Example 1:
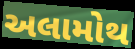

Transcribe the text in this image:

અલામોથ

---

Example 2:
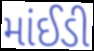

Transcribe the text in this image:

માંઈડી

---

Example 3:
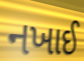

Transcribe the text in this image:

નખાઈ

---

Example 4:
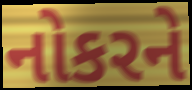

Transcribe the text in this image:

નોકરને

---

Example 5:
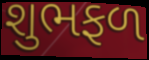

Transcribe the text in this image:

શુભફળ